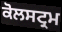
ਕੋਲਸਟ੍ਰਮ